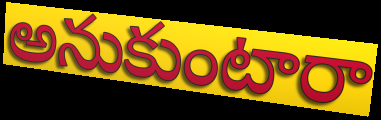
అనుకుంటారా